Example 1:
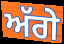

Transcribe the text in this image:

ਅੱਗੇ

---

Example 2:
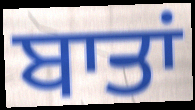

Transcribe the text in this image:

ਬਾਤਾਂ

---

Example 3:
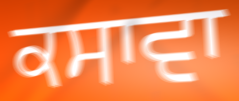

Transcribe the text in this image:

ਕਸਾਵਾ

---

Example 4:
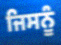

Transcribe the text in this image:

ਜਿਸਨੂੰ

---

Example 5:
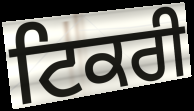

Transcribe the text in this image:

ਟਿਕਰੀ